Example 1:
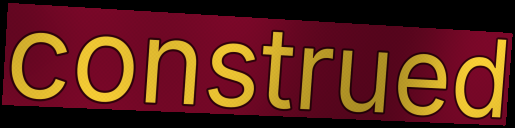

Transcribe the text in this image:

construed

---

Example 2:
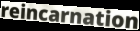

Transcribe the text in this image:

reincarnation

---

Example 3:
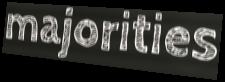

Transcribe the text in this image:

majorities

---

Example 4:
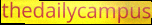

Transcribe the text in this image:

thedailycampus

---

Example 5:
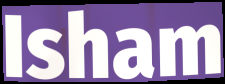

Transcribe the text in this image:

Isham